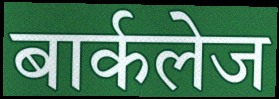
बार्कलेज